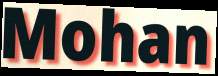
Mohan